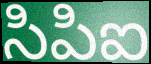
సిపిఐ